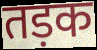
तड़क